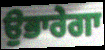
ਉਭਾਰੇਗਾ